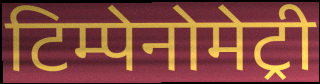
टिम्पेनोमेट्री